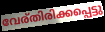
വേര്തിരിക്കപ്പെട്ടു